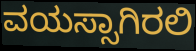
ವಯಸ್ಸಾಗಿರಲಿ